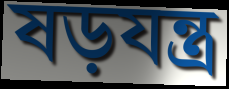
ষড়যন্ত্ৰ